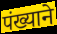
पंख्याने